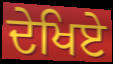
ਦੇਖਿਏ